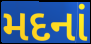
મદનાં